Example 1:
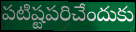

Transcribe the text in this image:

పటిష్టపరిచేందుకు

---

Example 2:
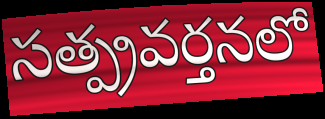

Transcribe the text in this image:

సత్ప్రవర్తనలో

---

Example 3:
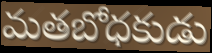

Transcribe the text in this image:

మతబోధకుడు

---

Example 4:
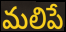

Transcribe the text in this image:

మలిపే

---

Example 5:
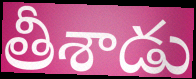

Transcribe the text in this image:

తీశాడు